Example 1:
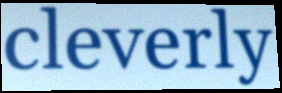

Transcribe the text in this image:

cleverly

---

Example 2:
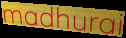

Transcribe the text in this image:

madhurai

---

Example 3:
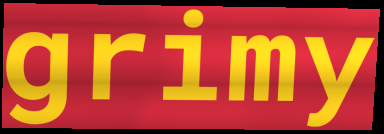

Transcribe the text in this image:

grimy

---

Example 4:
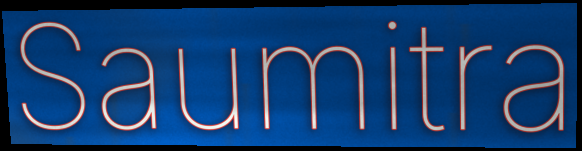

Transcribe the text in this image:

Saumitra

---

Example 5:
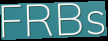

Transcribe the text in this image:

FRBs